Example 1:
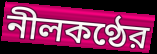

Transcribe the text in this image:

নীলকণ্ঠের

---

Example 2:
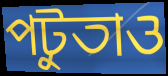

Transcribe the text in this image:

পটুতাও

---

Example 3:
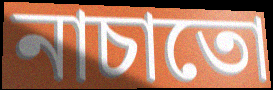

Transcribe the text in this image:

নাচাতো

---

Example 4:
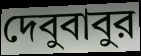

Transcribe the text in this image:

দেবুবাবুর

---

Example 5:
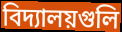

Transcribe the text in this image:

বিদ্যালয়গুলি